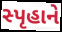
સ્પૃહાને